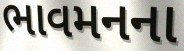
ભાવમનના